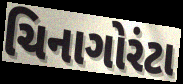
ચિનાગોરંટા